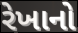
રેખાનો